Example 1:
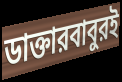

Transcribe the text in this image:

ডাক্তারবাবুরই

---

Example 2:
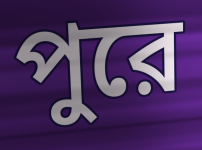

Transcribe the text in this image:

পুরে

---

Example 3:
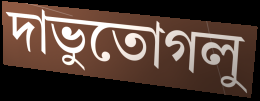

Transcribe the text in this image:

দাভুতোগলু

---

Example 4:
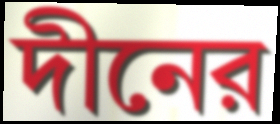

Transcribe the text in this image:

দীনের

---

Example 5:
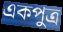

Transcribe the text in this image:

একপুত্র